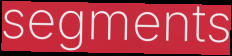
segments